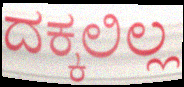
ದಕ್ಕಲಿಲ್ಲ